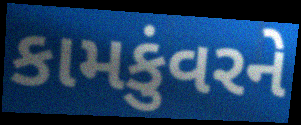
કામકુંવરને